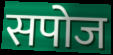
सपोज